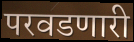
परवडणारी